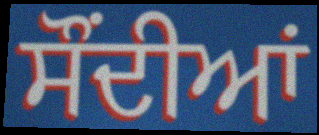
ਸੌਂਦੀਆਂ